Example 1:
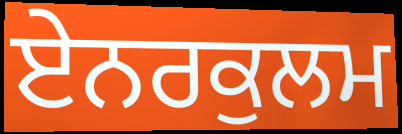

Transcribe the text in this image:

ਏਨਰਕੁਲਮ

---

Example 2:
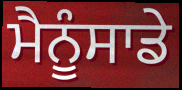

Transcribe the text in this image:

ਮੈਨੂੰਸਾਡੇ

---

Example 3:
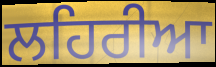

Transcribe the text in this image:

ਲਹਿਰੀਆ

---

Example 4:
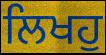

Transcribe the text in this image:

ਲਿਖਹੁ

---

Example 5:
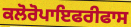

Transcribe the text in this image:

ਕਲੋਰੋਪਾਇਫਰੀਫਾਸ